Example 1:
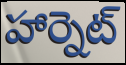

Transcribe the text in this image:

హార్నెట్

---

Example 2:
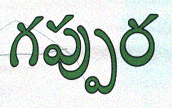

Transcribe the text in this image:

గప్పుర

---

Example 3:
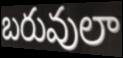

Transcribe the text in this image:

బరువులా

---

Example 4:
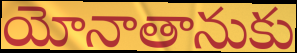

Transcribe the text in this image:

యోనాతానుకు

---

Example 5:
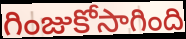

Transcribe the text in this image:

గింజుకోసాగింది